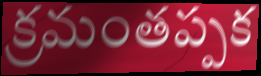
క్రమంతప్పక